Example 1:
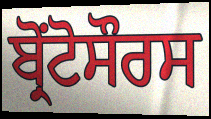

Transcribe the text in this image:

ਬ੍ਰੋਂਟੋਸੌਰਸ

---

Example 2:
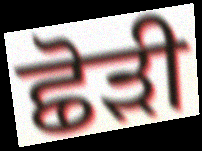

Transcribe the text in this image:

ਛੋੜੀ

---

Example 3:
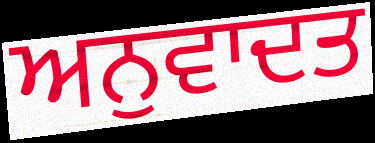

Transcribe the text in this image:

ਅਨੁਵਾਦਤ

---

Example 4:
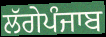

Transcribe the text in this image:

ਲੱਗੇਪੰਜਾਬ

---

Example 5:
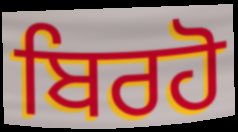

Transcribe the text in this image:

ਬਿਰਹੋ